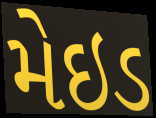
મેઇડ